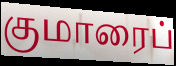
குமாரைப்